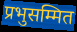
प्रभुसम्मित